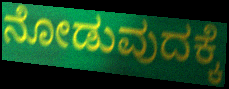
ನೋಡುವುದಕ್ಕೆ